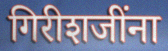
गिरीशजींना